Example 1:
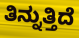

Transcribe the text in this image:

ತಿನ್ನುತ್ತಿದೆ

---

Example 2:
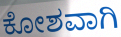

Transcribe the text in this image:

ಕೋಶವಾಗಿ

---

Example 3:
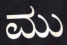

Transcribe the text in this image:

ಮು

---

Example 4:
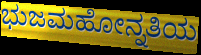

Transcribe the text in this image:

ಭುಜಮಹೋನ್ನತಿಯ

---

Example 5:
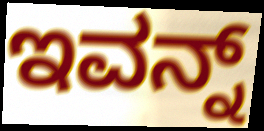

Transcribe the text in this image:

ಇವನ್ನ್